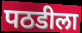
पठडीला